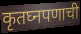
कृतघ्नपणाची